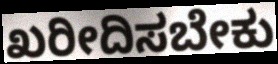
ಖರೀದಿಸಬೇಕು